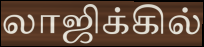
லாஜிக்கில்